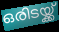
ഒരിടയ്ക്ക്